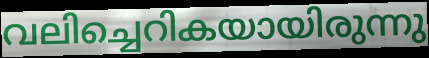
വലിച്ചെറികയായിരുന്നു